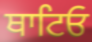
ਥਾਟਿਓ